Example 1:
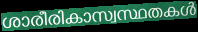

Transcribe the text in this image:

ശാരീരികാസ്വസ്ഥതകൾ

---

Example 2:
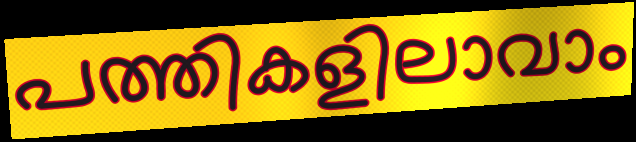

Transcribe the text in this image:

പത്തികളിലാവാം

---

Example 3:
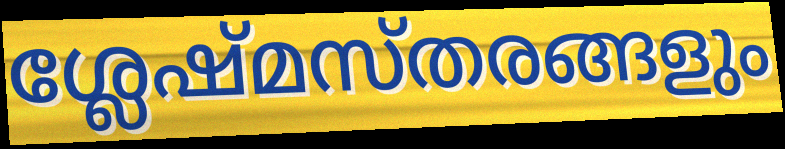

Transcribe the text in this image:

ശ്ലേഷ്മസ്തരങ്ങളും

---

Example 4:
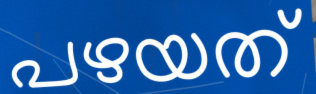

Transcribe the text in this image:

പഴയത്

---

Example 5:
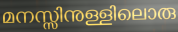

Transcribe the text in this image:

മനസ്സിനുള്ളിലൊരു